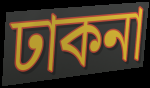
ঢাকনা